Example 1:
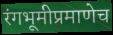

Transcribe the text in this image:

रंगभूमीप्रमाणेच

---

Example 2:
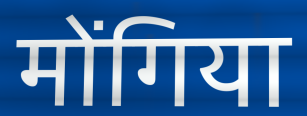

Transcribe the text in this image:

मोंगिया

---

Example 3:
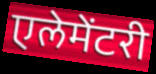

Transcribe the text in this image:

एलेमेंटरी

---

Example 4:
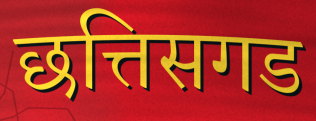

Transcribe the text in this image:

छत्तिसगड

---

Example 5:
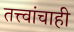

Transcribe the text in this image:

तत्त्वांचाही